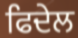
ਫਿਦੇਲ